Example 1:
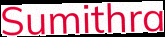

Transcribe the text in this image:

Sumithra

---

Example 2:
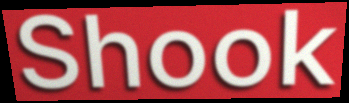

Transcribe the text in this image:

Shook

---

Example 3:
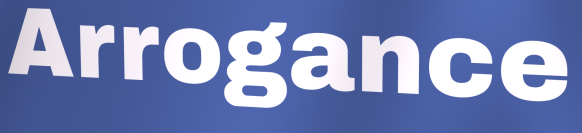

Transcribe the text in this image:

Arrogance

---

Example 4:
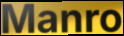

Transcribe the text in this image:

Manro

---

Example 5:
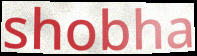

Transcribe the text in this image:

shobha